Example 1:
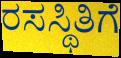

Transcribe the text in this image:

ರಸಸ್ಥಿತಿಗೆ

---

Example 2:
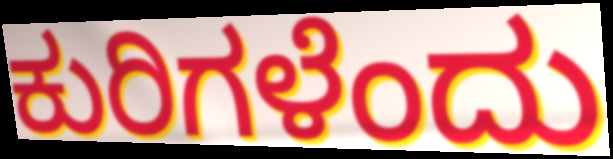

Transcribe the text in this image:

ಕುರಿಗಳೆಂದು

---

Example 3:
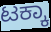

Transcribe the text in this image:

ಟಕ್ಕಾ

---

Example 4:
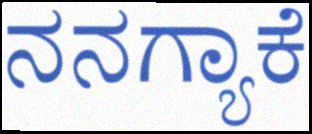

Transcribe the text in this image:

ನನಗ್ಯಾಕೆ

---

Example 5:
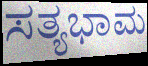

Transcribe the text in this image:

ಸತ್ಯಭಾಮ